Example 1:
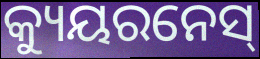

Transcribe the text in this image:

କ୍ୟୁୟରନେସ୍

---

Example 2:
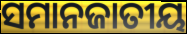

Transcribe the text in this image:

ସମାନଜାତୀୟ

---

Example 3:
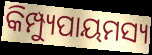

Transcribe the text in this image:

କିମ୍ପ୍ୟୁପାୟମସ୍ୟ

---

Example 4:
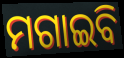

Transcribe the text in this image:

ମଗାଇବି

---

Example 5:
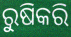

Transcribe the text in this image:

ରୁଷିକରି